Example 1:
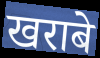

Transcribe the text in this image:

खराबे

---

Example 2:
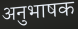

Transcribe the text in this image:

अनुभाषक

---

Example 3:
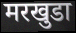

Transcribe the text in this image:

मरखुडा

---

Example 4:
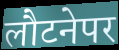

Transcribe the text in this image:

लौटनेपर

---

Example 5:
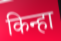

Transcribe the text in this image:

किन्हा